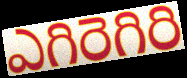
ఎగిరెగిరి